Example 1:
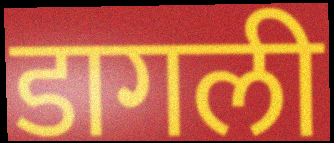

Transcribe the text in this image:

डागली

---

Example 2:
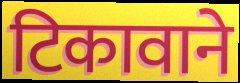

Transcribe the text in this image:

टिकावाने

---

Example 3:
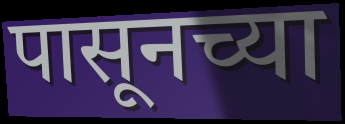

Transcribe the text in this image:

पासूनच्या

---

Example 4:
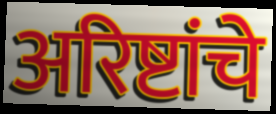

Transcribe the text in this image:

अरिष्टांचे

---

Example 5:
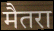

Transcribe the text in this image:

मैतरा